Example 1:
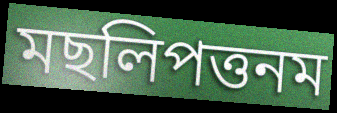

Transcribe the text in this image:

মছলিপত্তনম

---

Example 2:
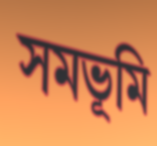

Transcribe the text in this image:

সমভূমি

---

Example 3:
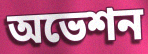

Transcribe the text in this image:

অভেশন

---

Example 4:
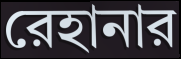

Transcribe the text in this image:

রেহানার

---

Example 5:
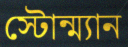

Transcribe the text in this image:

স্টোন্ম্যান